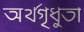
অর্থগৃধুতা